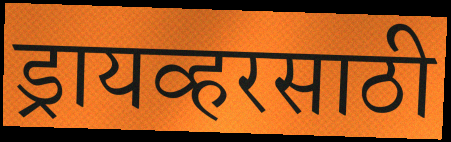
ड्रायव्हरसाठी